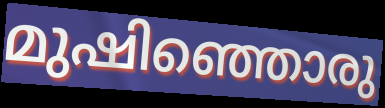
മുഷിഞ്ഞൊരു